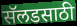
सॅलडसाठी